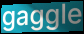
gaggle